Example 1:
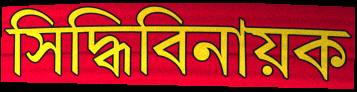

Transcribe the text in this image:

সিদ্ধিবিনায়ক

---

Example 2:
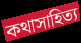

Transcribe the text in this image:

কথাসাহিত্য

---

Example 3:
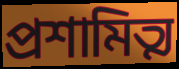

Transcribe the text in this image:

প্রশামিত্ম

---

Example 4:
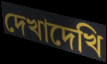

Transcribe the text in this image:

দেখাদেখি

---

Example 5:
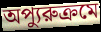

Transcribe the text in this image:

অপ্যুরুক্রমে